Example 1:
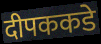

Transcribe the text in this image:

दीपककडे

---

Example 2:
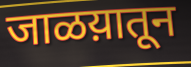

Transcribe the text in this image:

जाळय़ातून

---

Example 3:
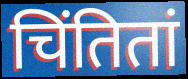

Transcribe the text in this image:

चिंतितां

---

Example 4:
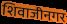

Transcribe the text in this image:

शिवाजीनगर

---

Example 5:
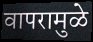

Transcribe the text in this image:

वापरामुळे